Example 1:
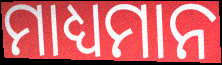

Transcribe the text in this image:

ମାଧ୍ଯମାନ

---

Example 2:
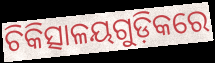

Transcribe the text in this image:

ଚିକିତ୍ସାଳୟଗୁଡ଼ିକରେ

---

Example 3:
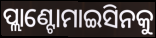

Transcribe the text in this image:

ପ୍ଲାଣ୍ଟୋମାଇସିନକୁ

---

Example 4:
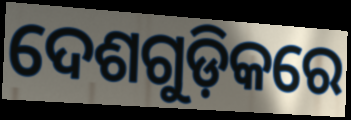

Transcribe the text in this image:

ଦେଶଗୁଡ଼ିକରେ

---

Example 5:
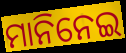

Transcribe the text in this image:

ମାନିନେଇ